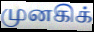
முனகிக்